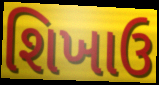
શિખાઉ